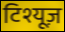
टिश्यूज़